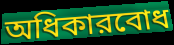
অধিকারবোধ